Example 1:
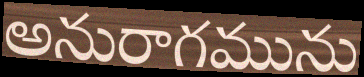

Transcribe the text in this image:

అనురాగమును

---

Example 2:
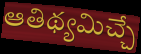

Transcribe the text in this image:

ఆతిథ్యమిచ్చే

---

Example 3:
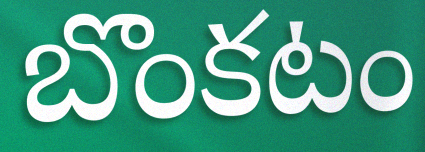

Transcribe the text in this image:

బొంకటం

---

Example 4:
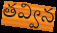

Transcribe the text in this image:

తవ్విన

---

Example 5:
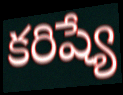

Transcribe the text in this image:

కరిష్యే